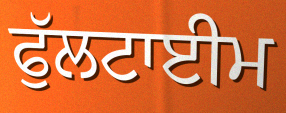
ਫੁੱਲਟਾਈਮ